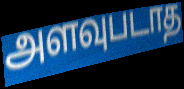
அளவுபடாத